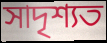
সাদৃশ্যত